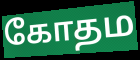
கோதம